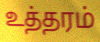
உத்தரம்